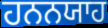
ਹਨਨਯਾਹ